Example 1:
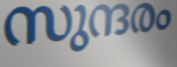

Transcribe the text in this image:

സുന്ദരം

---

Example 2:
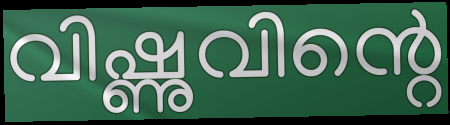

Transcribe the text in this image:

വിഷ്ണുവിന്റെ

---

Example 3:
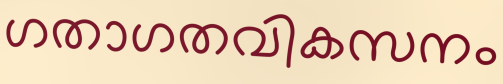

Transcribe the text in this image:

ഗതാഗതവികസനം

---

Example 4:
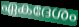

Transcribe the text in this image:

ഏകദേശം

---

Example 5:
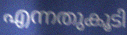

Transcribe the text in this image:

എന്നതുകൂടി